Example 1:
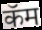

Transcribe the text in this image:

कॅम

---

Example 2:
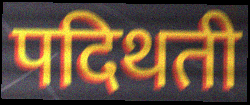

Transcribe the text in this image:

पदिथती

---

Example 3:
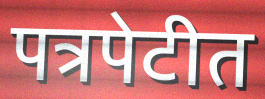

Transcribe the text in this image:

पत्रपेटीत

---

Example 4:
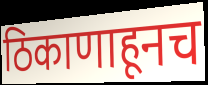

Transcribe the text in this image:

ठिकाणाहूनच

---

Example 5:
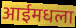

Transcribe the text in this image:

आईमधला